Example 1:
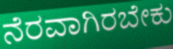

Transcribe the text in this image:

ನೆರವಾಗಿರಬೇಕು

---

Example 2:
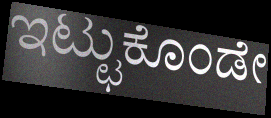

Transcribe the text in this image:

ಇಟ್ಟುಕೊಂಡೇ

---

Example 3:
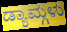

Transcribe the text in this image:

ಡ್ಯಾಮ್ಗಳು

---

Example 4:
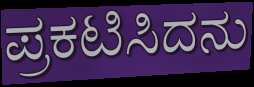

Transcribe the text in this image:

ಪ್ರಕಟಿಸಿದನು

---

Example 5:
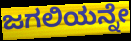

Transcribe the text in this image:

ಜಗಲಿಯನ್ನೇ